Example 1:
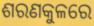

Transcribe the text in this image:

ଶରଣକୁଳରେ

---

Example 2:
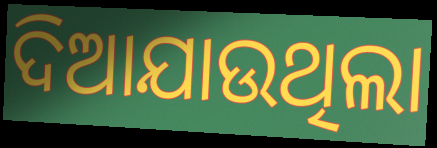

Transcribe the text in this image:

ଦିଆଯାଉଥିଲା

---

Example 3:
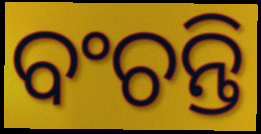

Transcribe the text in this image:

ବଂଚନ୍ତି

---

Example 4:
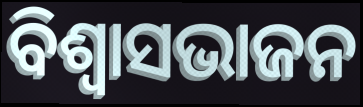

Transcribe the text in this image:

ବିଶ୍ଵାସଭାଜନ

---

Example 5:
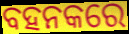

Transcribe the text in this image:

ବହନକରେ